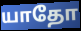
யாதோ